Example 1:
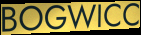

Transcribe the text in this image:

BOGWICC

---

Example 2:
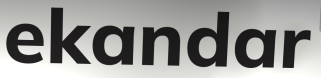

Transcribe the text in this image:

ekandar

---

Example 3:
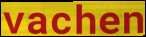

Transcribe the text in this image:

vachen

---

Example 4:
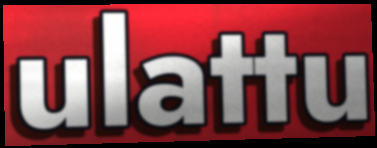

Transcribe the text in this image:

ulattu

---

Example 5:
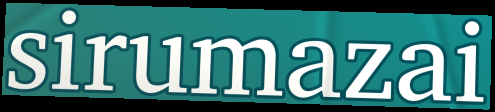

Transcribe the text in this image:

sirumazai